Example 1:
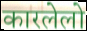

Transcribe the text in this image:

कारलेलो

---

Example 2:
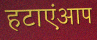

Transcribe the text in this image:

हटाएंआप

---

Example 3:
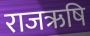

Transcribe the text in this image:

राजऋषि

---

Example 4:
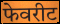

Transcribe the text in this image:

फेवरीट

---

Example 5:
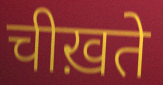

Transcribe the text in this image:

चीख़ते